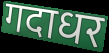
गदाधर